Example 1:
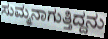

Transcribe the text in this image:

ಸುಮ್ಮನಾಗುತ್ತಿದ್ದನು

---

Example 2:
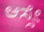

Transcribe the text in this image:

ಆಸ್ಸೇ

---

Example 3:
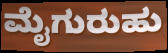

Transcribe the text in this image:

ಮೈಗುರುಹು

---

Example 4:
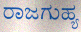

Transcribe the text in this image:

ರಾಜಗುಹ್ಯ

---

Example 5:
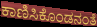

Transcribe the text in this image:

ಕಾಣಿಸಿಕೊಂಡನಂತೆ